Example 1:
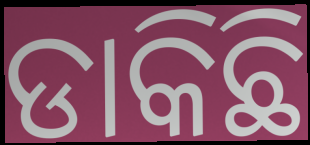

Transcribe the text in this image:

ଡାକିଛି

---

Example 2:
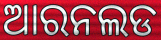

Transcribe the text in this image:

ଆରନଲଡ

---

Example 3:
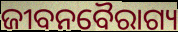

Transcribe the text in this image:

ଜୀବନବୈରାଗ୍ୟ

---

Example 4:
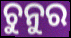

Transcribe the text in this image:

ଚୁନୁର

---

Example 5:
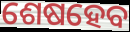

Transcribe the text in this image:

ଶେଷହେବ